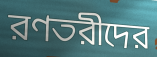
রণতরীদের